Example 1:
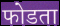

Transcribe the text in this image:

फोडता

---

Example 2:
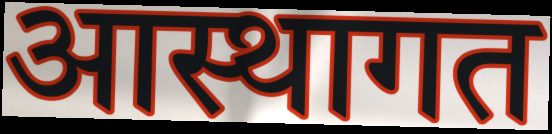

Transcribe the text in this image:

आस्थागत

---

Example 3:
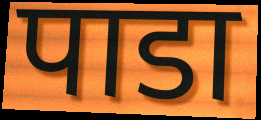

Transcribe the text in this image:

पाडा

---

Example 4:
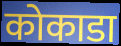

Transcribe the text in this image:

कोकाडा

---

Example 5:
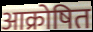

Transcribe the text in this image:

आक्रोषित